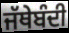
ਜੱਥੇਬੰਦੀ